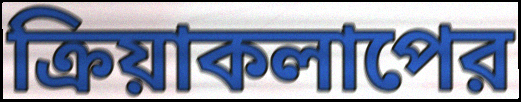
ক্রিয়াকলাপের